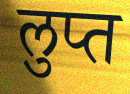
लुप्त